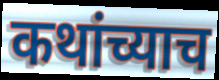
कथांच्याच